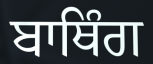
ਬਾਥਿੰਗ